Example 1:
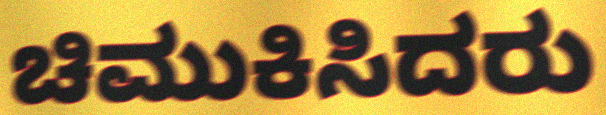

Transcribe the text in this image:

ಚಿಮುಕಿಸಿದರು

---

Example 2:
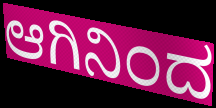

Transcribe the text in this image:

ಆಗಿನಿಂದ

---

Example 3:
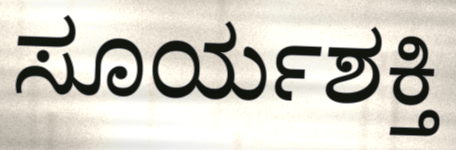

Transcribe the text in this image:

ಸೂರ್ಯಶಕ್ತಿ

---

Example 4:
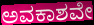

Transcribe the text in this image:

ಅವಕಾಶವೇ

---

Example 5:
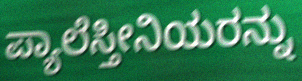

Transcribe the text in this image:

ಪ್ಯಾಲೆಸ್ತೀನಿಯರನ್ನು